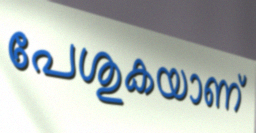
പേശുകയാണ്